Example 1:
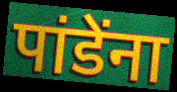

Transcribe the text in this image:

पांडेंना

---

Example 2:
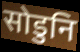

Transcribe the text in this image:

सोडुनि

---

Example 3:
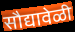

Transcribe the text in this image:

सौद्यावेळी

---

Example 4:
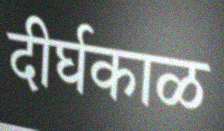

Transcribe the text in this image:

दीर्घकाळ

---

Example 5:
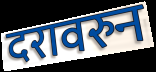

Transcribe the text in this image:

दरावरुन